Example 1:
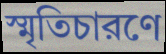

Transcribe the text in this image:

স্মৃতিচারণে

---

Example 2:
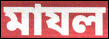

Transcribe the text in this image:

মাযল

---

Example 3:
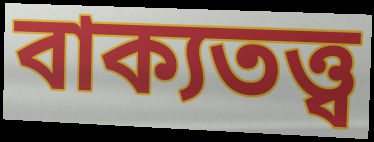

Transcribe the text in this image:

বাক্যতত্ত্ব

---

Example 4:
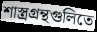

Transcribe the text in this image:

শাস্ত্রগ্রন্থগুলিতে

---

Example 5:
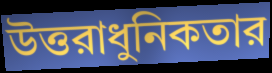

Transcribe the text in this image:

উত্তরাধুনিকতার